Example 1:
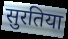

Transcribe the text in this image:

सुरतिया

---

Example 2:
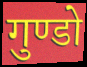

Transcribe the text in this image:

गुण्डो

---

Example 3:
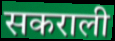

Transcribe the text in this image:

सकराली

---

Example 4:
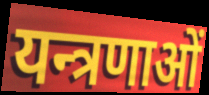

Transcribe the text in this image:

यन्त्रणाओं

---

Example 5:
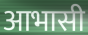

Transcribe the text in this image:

आभासी